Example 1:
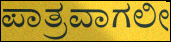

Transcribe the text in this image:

ಪಾತ್ರವಾಗಲೀ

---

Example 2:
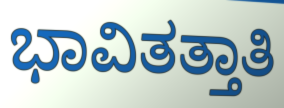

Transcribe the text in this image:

ಭಾವಿತತ್ತಾತಿ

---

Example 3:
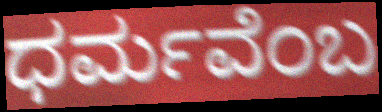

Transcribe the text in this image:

ಧರ್ಮವೆಂಬ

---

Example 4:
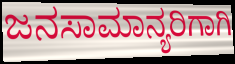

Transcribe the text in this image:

ಜನಸಾಮಾನ್ಯರಿಗಾಗಿ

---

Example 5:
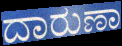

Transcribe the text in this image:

ದಾರುಣಾ